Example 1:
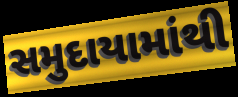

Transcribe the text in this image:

સમુદાયામાંથી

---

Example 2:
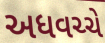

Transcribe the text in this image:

અધવચ્ચે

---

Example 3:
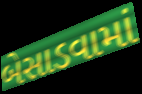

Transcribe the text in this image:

બેસાડવામાં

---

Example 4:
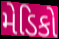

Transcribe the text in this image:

મેડિકો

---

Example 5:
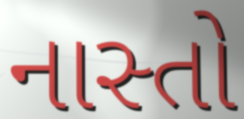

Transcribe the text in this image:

નાસ્તો